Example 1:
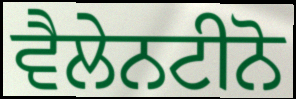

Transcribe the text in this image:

ਵੈਲੇਨਟੀਨੋ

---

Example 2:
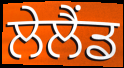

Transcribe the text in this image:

ਲੇਲੈਂਡ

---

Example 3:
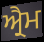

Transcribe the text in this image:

ਐ੍ਰਮ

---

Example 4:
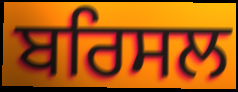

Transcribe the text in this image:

ਬਰਿਸਲ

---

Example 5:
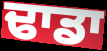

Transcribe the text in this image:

ਢਾਡਾ